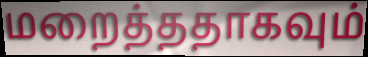
மறைத்ததாகவும்